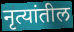
नृत्यांतील